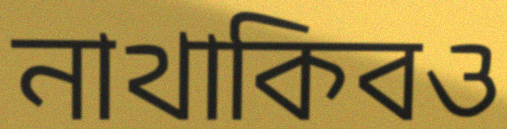
নাথাকিবও